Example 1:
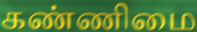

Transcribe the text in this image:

கண்ணிமை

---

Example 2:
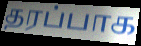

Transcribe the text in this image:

தரப்பாக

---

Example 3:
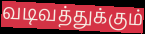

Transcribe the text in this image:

வடிவத்துக்கும்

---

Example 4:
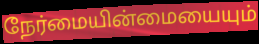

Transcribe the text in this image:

நேர்மையின்மையையும்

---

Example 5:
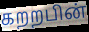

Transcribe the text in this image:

கறறபின்